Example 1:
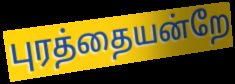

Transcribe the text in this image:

புரத்தையன்றே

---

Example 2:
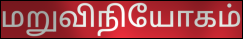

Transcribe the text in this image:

மறுவிநியோகம்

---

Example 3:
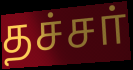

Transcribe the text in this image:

தச்சர்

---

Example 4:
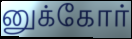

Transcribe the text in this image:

னுக்கோர்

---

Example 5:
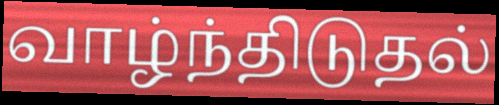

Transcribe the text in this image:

வாழ்ந்திடுதல்